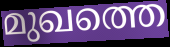
മുഖത്തെ